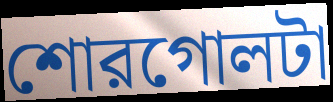
শোরগোলটা